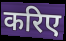
करिए